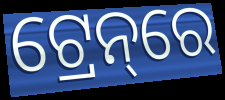
ଟ୍ରେନ୍‌ରେ